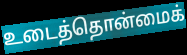
உடைத்தொன்மைக்